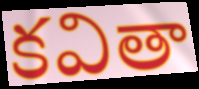
కవితా